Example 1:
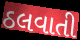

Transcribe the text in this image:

ઠલવાતી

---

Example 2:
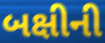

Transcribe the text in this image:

બક્ષીની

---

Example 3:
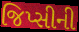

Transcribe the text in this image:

જિપ્સીની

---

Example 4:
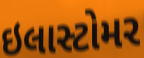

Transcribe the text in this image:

ઇલાસ્ટોમર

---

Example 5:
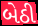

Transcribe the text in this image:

બેઠી